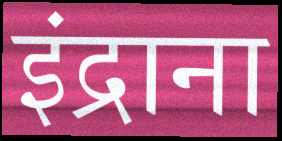
इंद्राना